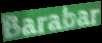
Barabar